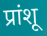
प्रांशू